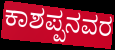
ಕಾಶಪ್ಪನವರ